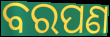
ବରପଣ